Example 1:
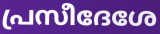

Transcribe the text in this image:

പ്രസീദേശേ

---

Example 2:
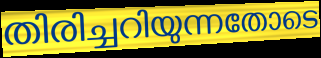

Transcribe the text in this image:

തിരിച്ചറിയുന്നതോടെ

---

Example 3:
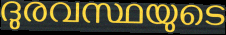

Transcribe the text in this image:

ദുരവസ്ഥയുടെ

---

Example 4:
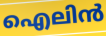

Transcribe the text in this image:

ഐലിൻ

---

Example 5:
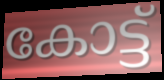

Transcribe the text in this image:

കോട്ട്